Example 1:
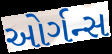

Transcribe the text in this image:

ઓર્ગન્સ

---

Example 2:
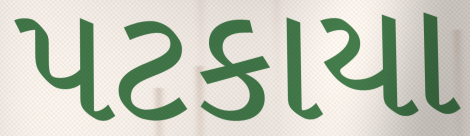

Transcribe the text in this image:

પટકાયા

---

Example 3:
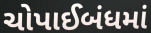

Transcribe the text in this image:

ચોપાઈબંધમાં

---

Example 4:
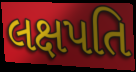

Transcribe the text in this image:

લક્ષપતિ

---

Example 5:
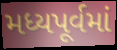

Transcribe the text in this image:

મધ્યપૂર્વમાં